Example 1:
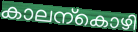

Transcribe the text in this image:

കാലന്കൊഴി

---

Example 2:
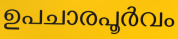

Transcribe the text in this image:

ഉപചാരപൂർവം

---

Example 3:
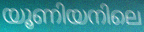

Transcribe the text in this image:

യൂണിയനിലെ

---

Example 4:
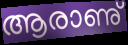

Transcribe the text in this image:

ആരാണു്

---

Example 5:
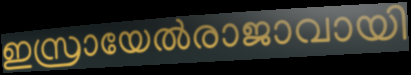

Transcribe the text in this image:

ഇസ്രായേൽരാജാവായി